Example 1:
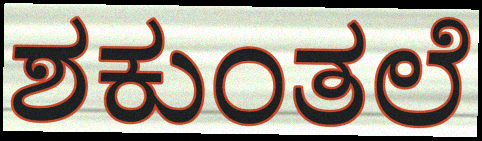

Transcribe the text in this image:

ಶಕುಂತಲೆ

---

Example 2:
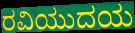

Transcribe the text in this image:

ರವಿಯುದಯ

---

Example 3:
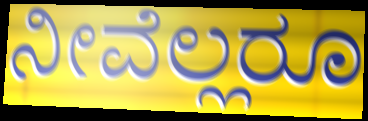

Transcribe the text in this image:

ನೀವೆಲ್ಲರೂ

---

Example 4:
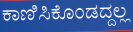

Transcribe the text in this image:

ಕಾಣಿಸಿಕೊಂಡದ್ದಲ್ಲ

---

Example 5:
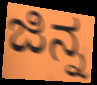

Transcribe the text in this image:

ಜಿನ್ನ